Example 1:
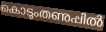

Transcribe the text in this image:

കൊടുംതണുപ്പിൽ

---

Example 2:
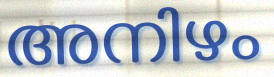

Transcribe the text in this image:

അനിഴം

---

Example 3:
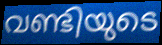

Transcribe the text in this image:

വണ്ടിയുടെ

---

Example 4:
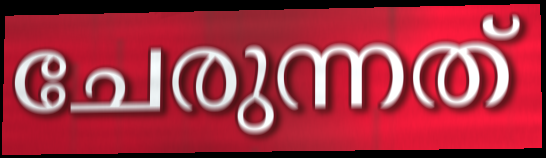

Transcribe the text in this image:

ചേരുന്നത്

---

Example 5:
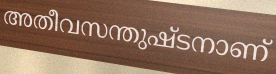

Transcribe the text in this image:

അതീവസന്തുഷ്ടനാണ്